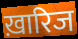
ख़ारिज